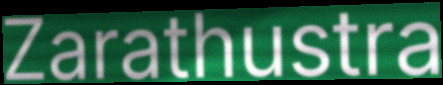
Zarathustra